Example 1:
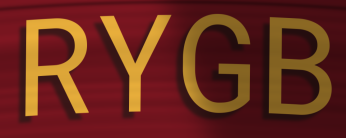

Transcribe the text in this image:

RYGB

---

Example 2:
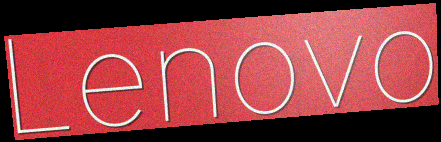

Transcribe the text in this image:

Lenovo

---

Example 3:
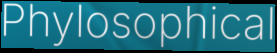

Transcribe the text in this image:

Phylosophical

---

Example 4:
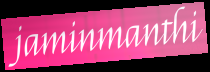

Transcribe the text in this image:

jaminmanthi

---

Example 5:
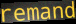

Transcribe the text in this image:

remand